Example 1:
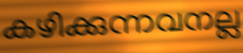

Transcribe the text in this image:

കഴിക്കുന്നവനല്ല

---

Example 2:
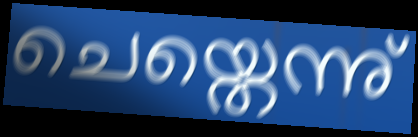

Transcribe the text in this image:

ചെയ്തെന്നു്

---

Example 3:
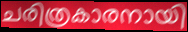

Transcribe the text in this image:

ചരിത്രകാരനായി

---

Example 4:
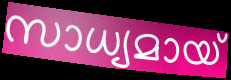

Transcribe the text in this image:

സാധ്യമായ്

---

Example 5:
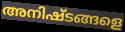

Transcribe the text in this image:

അനിഷ്ടങ്ങളെ